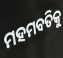
ମହମବତିକୁ